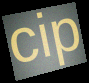
cip